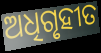
ଅଧିଗୃହୀତ